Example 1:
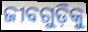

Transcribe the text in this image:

ଜୀବଗୁଡ଼ିକୁ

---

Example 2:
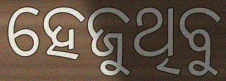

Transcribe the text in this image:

ହେଜୁଥିବୁ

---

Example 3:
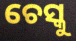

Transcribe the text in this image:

ଚେସ୍କୁ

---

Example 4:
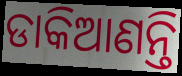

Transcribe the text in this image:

ଡାକିଆଣନ୍ତି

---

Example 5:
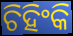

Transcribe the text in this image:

ଚିହିଂକି